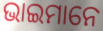
ଭାଇମାନେ